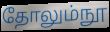
தோலும்நூ